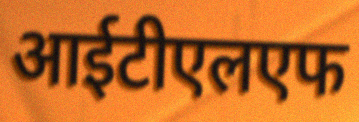
आईटीएलएफ